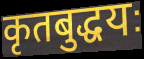
कृतबुद्धयः